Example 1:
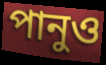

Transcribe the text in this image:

পানুও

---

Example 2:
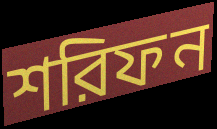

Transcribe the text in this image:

শরিফন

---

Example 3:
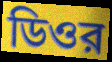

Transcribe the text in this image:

ডিওর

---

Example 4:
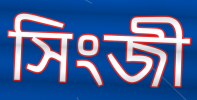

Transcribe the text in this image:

সিংজী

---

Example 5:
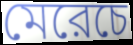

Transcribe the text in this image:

মেরেচে